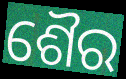
ଶୈର